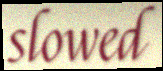
slowed